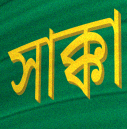
সাক্কা